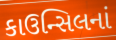
કાઉન્સિલનાં